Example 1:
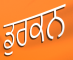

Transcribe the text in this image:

ਡੁਰਕਨ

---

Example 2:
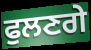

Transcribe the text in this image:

ਫੁਲਣਗੇ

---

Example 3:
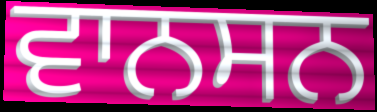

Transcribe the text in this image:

ਵਾਨਸਨ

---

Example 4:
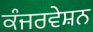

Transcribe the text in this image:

ਕੰਜਰਵੇਸ਼ਨ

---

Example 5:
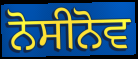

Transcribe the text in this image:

ਨੋਸੀਨੋਵ